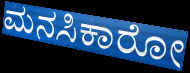
ಮನಸಿಕಾರೋ